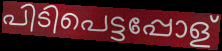
പിടിപെട്ടപ്പോള്